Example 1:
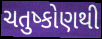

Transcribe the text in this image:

ચતુષ્કોણથી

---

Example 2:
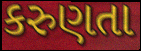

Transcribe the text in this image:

કરુણતા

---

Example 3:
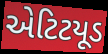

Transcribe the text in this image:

એટિટયૂડ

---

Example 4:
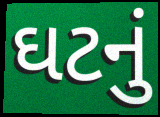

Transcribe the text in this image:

ઘટનું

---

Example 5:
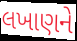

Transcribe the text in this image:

લખાણને